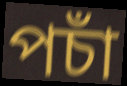
পচাঁ